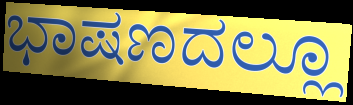
ಭಾಷಣದಲ್ಲೂ